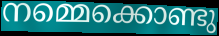
നമ്മെക്കൊണ്ടു